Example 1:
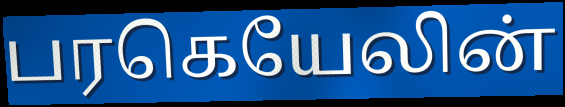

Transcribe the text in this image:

பரகெயேலின்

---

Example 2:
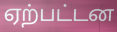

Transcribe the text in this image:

ஏற்பட்டன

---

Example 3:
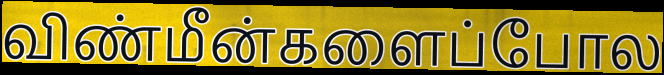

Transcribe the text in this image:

விண்மீன்களைப்போல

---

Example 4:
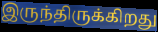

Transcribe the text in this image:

இருந்திருக்கிறது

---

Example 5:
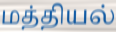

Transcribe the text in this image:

மத்தியல்